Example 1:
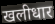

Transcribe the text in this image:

खलीधार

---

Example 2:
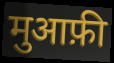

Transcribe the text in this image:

मुआफ़ी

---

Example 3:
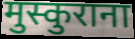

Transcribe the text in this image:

मुस्कुराना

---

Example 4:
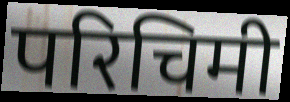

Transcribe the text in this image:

परिचिमी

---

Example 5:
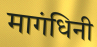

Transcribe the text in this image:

मागंधिनी